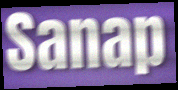
Sanap